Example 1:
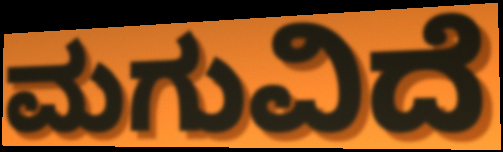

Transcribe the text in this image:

ಮಗುವಿದೆ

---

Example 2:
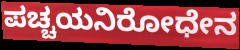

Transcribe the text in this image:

ಪಚ್ಚಯನಿರೋಧೇನ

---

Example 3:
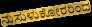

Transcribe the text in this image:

ನುಸುಳುಕೋರರಿಂದ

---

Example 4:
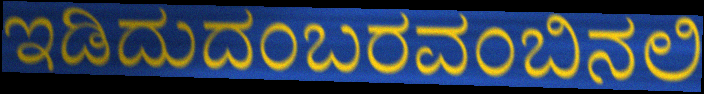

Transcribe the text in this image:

ಇಡಿದುದಂಬರವಂಬಿನಲಿ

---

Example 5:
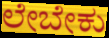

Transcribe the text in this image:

ಲೇಬೇಕು